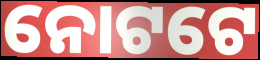
ନୋଟଟେ